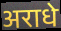
अराधे